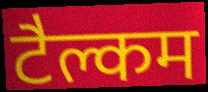
टैल्कम